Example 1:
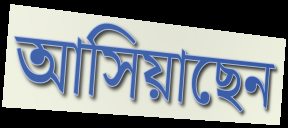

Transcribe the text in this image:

আসিয়াছেন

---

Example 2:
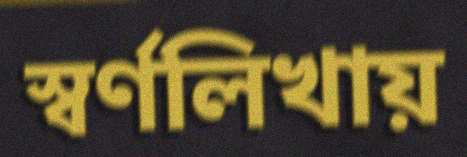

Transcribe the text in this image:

স্বর্ণলিখায়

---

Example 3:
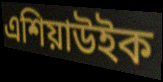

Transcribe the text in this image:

এশিয়াউইক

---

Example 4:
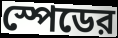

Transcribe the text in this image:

স্পেডের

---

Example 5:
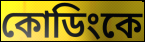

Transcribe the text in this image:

কোডিংকে